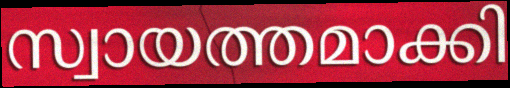
സ്വായത്തമാക്കി